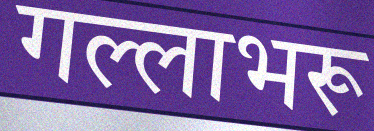
गल्लाभरू